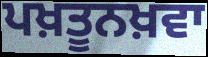
ਪਖ਼ਤੂਨਖ਼ਵਾ